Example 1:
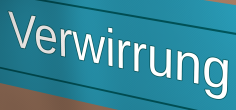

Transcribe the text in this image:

Verwirrung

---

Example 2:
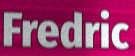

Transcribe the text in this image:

Fredric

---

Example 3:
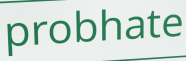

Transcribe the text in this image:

probhate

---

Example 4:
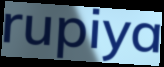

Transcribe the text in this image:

rupiya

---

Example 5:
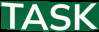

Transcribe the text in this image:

TASK